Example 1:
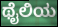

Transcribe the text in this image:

ಥೈಲಿಯ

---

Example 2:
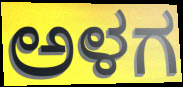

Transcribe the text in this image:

ಅಳಗ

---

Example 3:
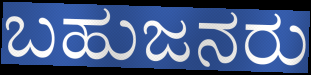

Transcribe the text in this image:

ಬಹುಜನರು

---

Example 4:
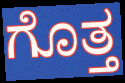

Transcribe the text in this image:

ಗೊತ್ತ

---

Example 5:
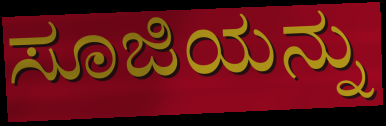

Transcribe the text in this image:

ಸೂಜಿಯನ್ನು